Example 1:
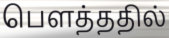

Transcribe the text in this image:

பௌத்ததில்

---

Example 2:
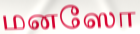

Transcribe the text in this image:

மனஸோ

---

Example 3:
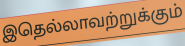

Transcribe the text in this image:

இதெல்லாவற்றுக்கும்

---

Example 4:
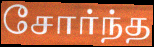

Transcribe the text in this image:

சோர்ந்த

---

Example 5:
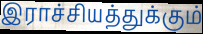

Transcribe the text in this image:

இராச்சியத்துக்கும்